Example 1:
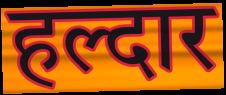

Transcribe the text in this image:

हल्दार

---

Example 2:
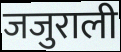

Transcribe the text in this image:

जजुराली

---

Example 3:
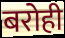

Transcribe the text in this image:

बरोही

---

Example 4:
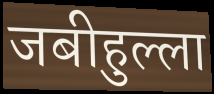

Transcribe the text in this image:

जबीहुल्ला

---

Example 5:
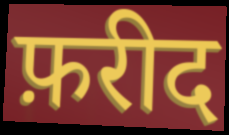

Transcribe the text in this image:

फ़रीद